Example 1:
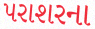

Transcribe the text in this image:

પરાશરના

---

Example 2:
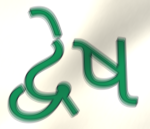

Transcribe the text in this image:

દ્વેષ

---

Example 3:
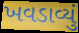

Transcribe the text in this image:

ખવડાવ્યું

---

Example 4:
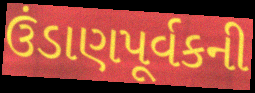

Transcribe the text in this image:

ઉંડાણપૂર્વકની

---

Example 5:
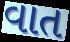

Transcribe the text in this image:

વાત